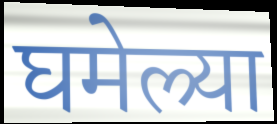
घमेल्या